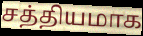
சத்தியமாக